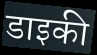
डाइकी